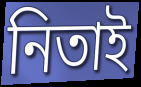
নিতাই